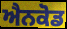
ਐਨਕੋਡ